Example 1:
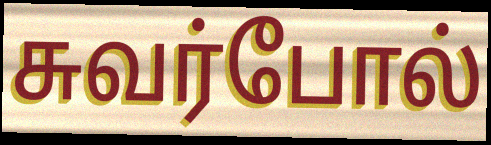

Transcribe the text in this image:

சுவர்போல்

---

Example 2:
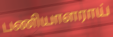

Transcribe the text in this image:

பணியாளராய்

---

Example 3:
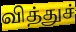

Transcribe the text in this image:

வித்துச்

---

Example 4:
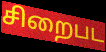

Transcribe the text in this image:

சிறைபட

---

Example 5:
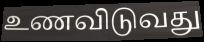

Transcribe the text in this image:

உணவிடுவது